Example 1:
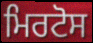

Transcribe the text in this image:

ਮਿਰਟੋਸ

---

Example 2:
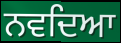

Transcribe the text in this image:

ਨਵਦਿਆ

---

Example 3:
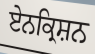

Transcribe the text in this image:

ਏਨਕ੍ਰਿਸ਼ਨ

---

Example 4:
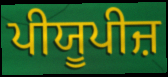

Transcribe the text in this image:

ਪੀਯੂਪੀਜ਼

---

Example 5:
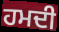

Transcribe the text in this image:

ਹਮਦੀ